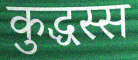
कुद्धस्स